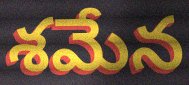
శమేన